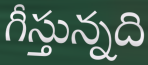
గీస్తున్నది